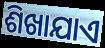
ଶିଖାଯାଏ